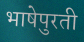
भाषेपुरती